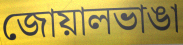
জোয়ালভাঙা